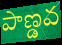
పాణ్డవ